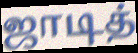
ஜாடித்